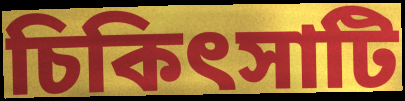
চিকিৎসাটি